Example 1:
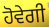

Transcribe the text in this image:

ਹੋਵੇਗੀ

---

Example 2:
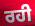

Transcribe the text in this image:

ਰਹੀ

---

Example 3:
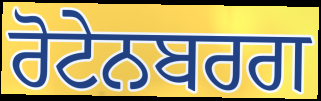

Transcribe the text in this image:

ਰੋਟੇਨਬਰਗ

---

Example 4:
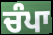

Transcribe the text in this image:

ਚੰਪਾ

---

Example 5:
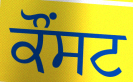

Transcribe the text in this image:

ਕੌਂਸਟ